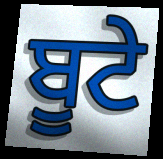
ਬੂਟੇ